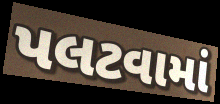
પલટવામાં